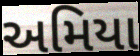
અમિયા